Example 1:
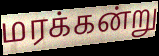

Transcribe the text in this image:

மரக்கன்று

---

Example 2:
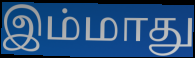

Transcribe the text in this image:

இம்மாது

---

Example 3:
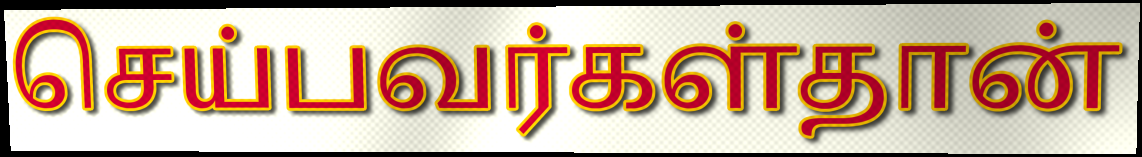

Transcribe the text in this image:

செய்பவர்கள்தான்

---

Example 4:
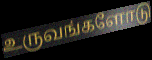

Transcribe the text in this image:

உருவங்களோடு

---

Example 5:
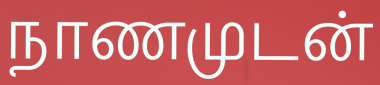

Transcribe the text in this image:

நாணமுடன்